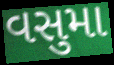
વસુમા